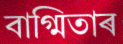
বাগ্মিতাৰ